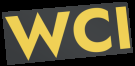
WCI